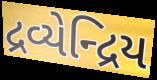
દ્રવ્યેન્દ્રિય